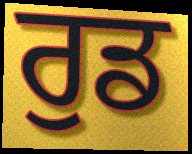
ਰੁਡ